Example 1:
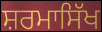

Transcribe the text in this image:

ਸ਼ਰਮਾਸਿੱਖ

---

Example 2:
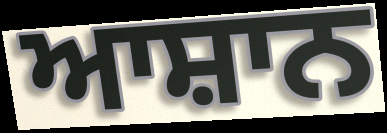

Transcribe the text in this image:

ਆਸ਼ਾਨ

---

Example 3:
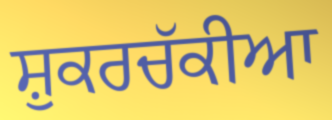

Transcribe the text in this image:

ਸ਼ੁਕਰਚੱਕੀਆ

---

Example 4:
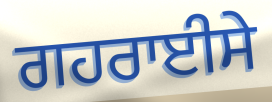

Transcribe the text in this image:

ਗਹਰਾਈਸੇ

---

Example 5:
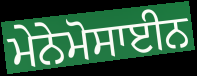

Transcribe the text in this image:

ਮੇਨੇਮੋਸਾਈਨ